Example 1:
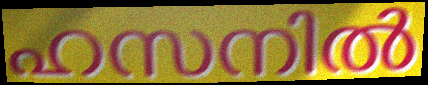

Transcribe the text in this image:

ഹസനിൽ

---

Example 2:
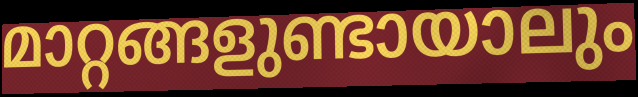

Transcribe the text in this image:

മാറ്റങ്ങളുണ്ടായാലും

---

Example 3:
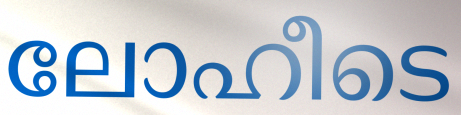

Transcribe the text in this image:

ലോഹീടെ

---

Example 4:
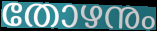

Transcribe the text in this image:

തോഴനും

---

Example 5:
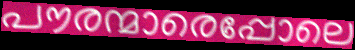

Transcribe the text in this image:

പൗരന്മാരെപ്പോലെ